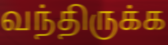
வந்திருக்க